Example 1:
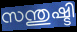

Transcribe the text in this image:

സന്തുഷ്ടി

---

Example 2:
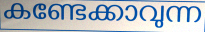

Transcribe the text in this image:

കണ്ടേക്കാവുന്ന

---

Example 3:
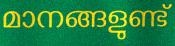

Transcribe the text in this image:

മാനങ്ങളുണ്ട്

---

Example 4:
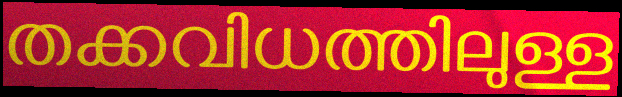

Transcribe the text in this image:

തക്കവിധത്തിലുള്ള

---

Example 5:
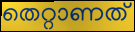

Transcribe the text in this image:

തെറ്റാണത്